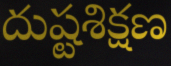
దుష్టశిక్షణ